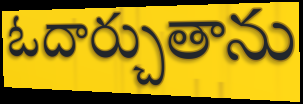
ఓదార్చుతాను